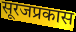
सूरजप्रकास